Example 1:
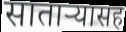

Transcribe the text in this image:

साताऱ्यासह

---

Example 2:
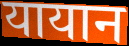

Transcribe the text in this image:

यायान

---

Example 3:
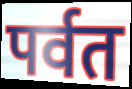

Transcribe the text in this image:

पर्वत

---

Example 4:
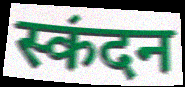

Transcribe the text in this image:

स्कंदन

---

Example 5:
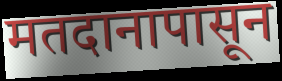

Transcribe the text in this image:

मतदानापासून